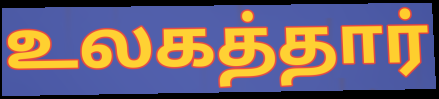
உலகத்தார்